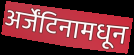
अर्जेंटिनामधून